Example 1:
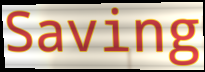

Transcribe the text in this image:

Saving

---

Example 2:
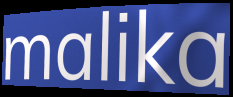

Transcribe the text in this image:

malika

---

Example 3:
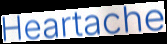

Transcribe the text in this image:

Heartache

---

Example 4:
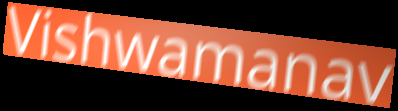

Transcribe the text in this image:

Vishwamanav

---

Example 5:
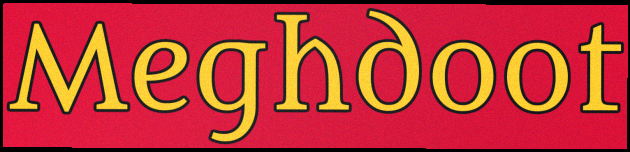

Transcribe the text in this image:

Meghdoot